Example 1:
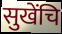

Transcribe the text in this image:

सुखेंचि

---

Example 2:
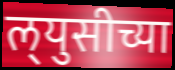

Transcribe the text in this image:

ल्युसीच्या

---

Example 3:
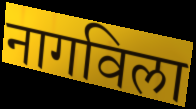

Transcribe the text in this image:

नागविला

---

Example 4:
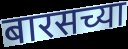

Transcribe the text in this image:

बारसच्या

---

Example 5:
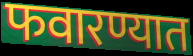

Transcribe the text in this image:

फवारण्यात